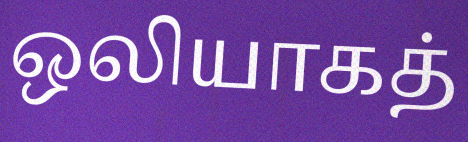
ஒலியாகத்